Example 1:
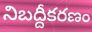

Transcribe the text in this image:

నిబద్దీకరణం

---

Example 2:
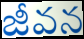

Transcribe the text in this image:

జీవన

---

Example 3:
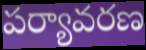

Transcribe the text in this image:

పర్యావరణ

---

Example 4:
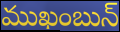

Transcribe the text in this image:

ముఖంబున్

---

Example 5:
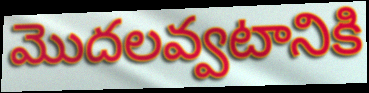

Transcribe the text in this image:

మొదలవ్వటానికి